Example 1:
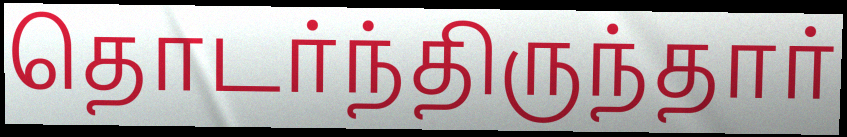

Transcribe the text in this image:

தொடர்ந்திருந்தார்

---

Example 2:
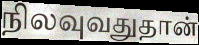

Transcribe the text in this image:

நிலவுவதுதான்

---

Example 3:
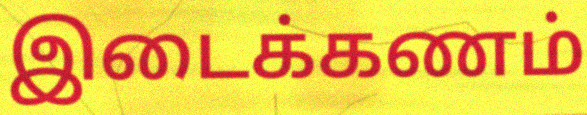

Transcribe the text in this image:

இடைக்கணம்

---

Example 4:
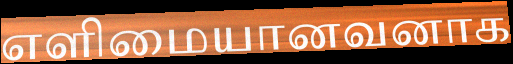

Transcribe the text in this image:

எளிமையானவனாக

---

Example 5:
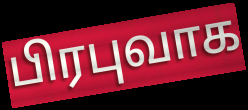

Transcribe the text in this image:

பிரபுவாக